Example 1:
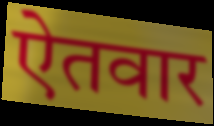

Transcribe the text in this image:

ऐतवार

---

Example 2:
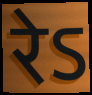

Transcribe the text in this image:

रेऽ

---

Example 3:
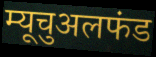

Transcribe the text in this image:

म्यूचुअलफंड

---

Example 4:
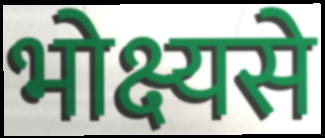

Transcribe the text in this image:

भोक्ष्यसे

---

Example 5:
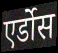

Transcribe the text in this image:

एर्डोस